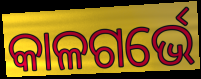
କାଳଗର୍ଭେ